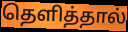
தெளித்தால்